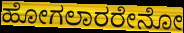
ಹೋಗಲಾರರೇನೋ